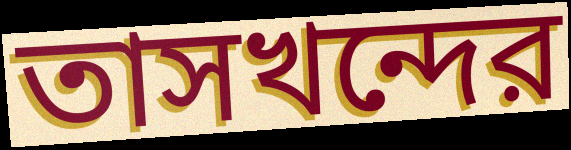
তাসখন্দের